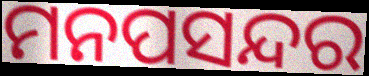
ମନପସନ୍ଦର